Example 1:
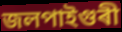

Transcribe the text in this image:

জলপাইগুৰী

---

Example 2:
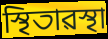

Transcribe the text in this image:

স্থিতাৱস্থা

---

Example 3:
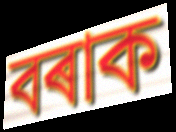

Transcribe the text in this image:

বৰাক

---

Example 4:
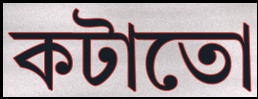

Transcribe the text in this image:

কটাতো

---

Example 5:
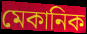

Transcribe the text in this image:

মেকানিক